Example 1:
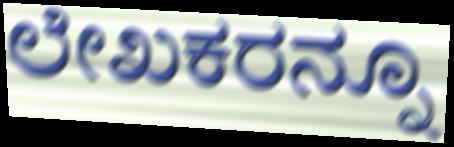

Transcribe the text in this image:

ಲೇಖಕರನ್ನೂ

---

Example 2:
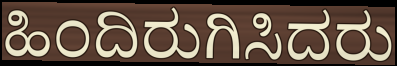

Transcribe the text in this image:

ಹಿಂದಿರುಗಿಸಿದರು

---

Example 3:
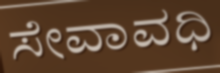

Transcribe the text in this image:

ಸೇವಾವಧಿ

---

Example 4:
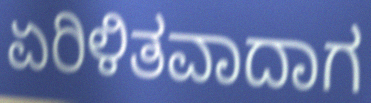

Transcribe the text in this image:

ಏರಿಳಿತವಾದಾಗ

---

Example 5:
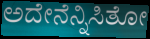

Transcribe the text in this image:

ಅದೇನೆನ್ನಿಸಿತೋ